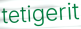
tetigerit